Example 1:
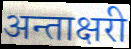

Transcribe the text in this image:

अन्ताक्षरी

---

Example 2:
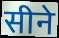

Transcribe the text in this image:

सीने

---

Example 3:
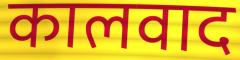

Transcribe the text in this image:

कालवाद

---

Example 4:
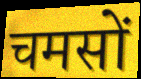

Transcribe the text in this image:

चमसों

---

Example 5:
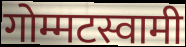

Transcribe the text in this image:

गोम्मटस्वामी